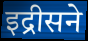
इद्रीसने